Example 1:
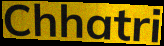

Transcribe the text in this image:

Chhatri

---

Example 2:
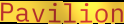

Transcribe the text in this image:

Pavilion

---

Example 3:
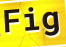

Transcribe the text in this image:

Fig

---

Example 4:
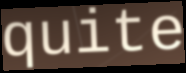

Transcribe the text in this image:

quite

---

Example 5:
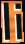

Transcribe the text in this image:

li